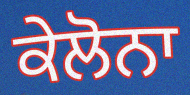
ਕੇਲੋਨਾ